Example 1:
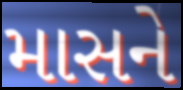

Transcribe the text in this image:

માસને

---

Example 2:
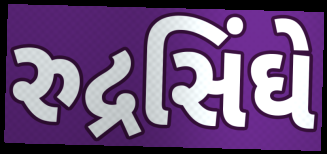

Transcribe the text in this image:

રુદ્રસિંઘે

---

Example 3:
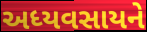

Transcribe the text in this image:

અધ્યવસાયને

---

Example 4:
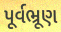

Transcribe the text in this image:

પૂર્વભ્રૂણ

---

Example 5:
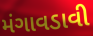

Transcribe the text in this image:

મંગાવડાવી